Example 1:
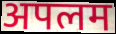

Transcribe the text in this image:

अपलम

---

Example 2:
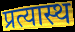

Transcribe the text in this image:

प्रत्यास्थ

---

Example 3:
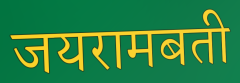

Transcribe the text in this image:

जयरामबती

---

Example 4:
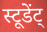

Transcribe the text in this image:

स्टूडेंट्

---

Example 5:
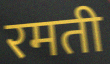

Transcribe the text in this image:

रमती